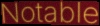
Notable